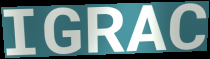
IGRAC